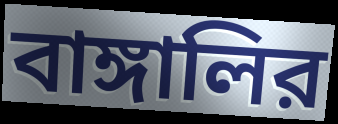
বাঙ্গালির